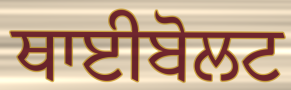
ਥਾਈਬੋਲਟ